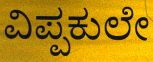
ವಿಪ್ಪಕುಲೇ